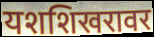
यशशिखरावर